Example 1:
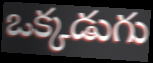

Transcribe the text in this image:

ఒక్కడుగు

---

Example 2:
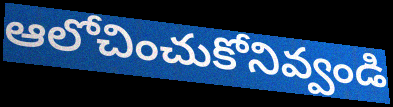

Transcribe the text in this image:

ఆలోచించుకోనివ్వండి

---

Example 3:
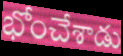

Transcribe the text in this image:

భోంచేశాడు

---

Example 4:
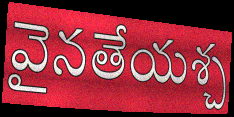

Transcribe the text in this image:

వైనతేయశ్చ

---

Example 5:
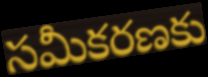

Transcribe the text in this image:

సమీకరణకు